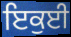
ਇਕੁਈ